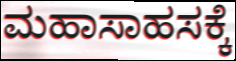
ಮಹಾಸಾಹಸಕ್ಕೆ